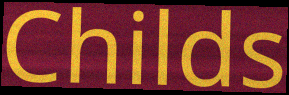
Childs